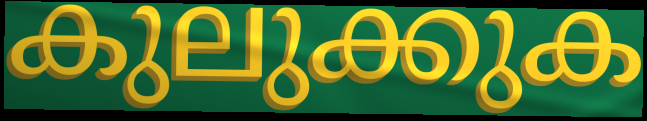
കുലുക്കുക